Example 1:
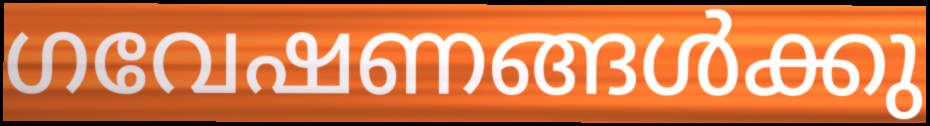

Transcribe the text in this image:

ഗവേഷണങ്ങൾക്കു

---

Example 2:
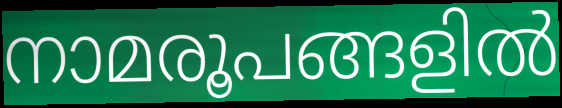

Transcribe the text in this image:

നാമരൂപങ്ങളിൽ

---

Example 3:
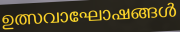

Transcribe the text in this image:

ഉത്സവാഘോഷങ്ങൾ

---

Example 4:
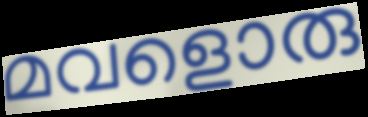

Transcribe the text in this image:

മവളൊരു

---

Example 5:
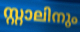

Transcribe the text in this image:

സ്റ്റാലിനും